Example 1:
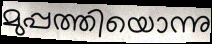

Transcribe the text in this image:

മുപ്പത്തിയൊന്നു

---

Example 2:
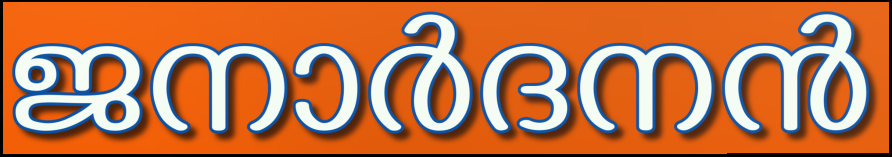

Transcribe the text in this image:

ജനാർദനൻ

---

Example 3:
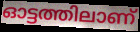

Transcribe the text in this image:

ഓട്ടത്തിലാണ്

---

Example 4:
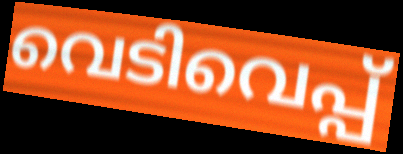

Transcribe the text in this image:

വെടിവെപ്പ്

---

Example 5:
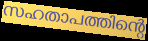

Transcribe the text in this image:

സഹതാപത്തിന്റെ